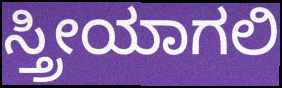
ಸ್ತ್ರೀಯಾಗಲಿ